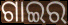
ଗାଇର